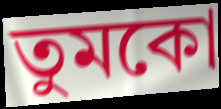
তুমকো